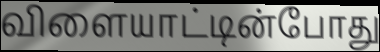
விளையாட்டின்போது